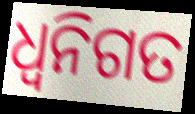
ଧ୍ୱନିଗତ